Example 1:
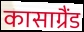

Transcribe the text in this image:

कासाग्रैंड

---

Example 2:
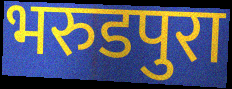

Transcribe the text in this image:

भरुडपुरा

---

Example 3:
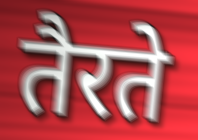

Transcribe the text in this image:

तैरते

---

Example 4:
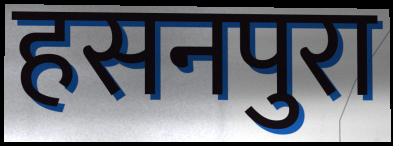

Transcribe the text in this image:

हसनपुरा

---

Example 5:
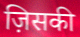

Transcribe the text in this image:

ज़िसकी